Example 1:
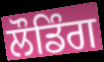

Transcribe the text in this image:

ਲੌਡਿੰਗ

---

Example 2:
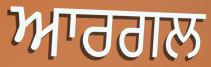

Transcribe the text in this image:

ਆਰਗਲ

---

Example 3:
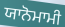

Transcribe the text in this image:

ਯਾਨੋਮਾਮੀ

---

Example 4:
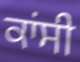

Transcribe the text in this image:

ਕਾਂਸੀ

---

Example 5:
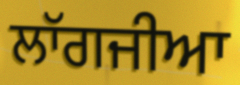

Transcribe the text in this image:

ਲਾੱਗਜੀਆ